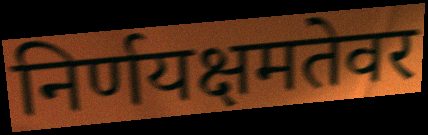
निर्णयक्षमतेवर